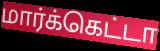
மார்க்கெட்டா